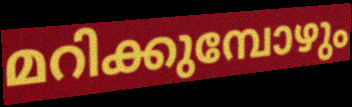
മറിക്കുമ്പോഴും